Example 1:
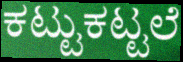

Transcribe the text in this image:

ಕಟ್ಟುಕಟ್ಟಲೆ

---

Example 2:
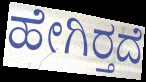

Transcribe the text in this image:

ಹೇಗಿರ್‍ತದೆ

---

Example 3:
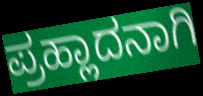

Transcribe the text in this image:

ಪ್ರಹ್ಲಾದನಾಗಿ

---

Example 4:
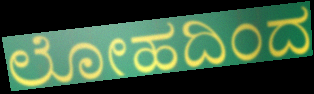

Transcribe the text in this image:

ಲೋಹದಿಂದ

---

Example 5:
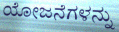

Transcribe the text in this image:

ಯೋಜನೆಗಳನ್ನು